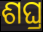
ଶଘ୍ର